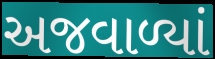
અજવાળ્યાં